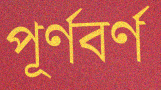
পূর্ণবর্ণ